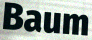
Baum